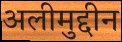
अलीमुद्दीन